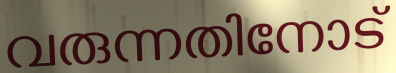
വരുന്നതിനോട്